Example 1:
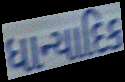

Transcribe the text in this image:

ધાન્યાદિક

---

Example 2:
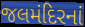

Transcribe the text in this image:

જલમંદિરનાં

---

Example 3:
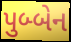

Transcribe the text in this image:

પુબ્બેન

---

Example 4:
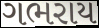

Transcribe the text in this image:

ગભરાય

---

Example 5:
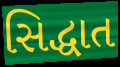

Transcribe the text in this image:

સિદ્ધાત